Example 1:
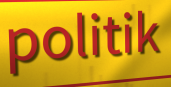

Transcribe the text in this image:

politik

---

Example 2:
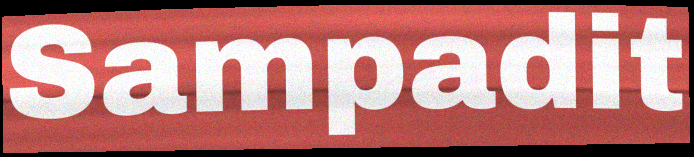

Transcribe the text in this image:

Sampadit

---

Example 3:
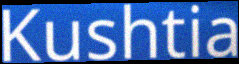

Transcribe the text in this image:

Kushtia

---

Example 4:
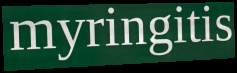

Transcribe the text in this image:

myringitis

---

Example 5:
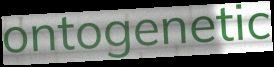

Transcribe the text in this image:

ontogenetic